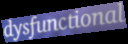
dysfunctional